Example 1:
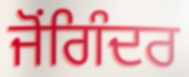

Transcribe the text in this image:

ਜੋਂਗਿੰਦਰ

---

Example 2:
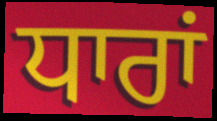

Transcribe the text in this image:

ਧਾਰਾਂ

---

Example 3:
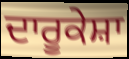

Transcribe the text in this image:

ਦਾਰੂਕੇਸ਼ਾ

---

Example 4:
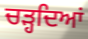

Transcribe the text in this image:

ਚੜ੍ਹਦਿਆਂ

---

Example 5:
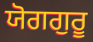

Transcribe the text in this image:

ਯੋਗਗੁਰੂ